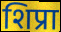
शिप्रा